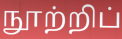
நூற்றிப்